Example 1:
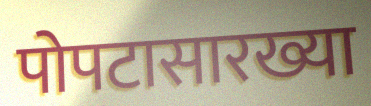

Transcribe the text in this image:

पोपटासारख्या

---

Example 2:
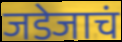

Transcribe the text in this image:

जडेजाचं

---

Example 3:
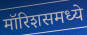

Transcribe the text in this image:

मॉरिशसमध्ये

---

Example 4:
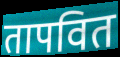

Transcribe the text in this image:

तापवित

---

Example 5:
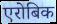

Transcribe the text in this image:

एरोबिक